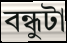
বন্ধুটা